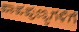
ಪಾಪಪುಣ್ಯಗಳಿಗೆ